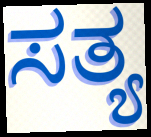
ಸತ್ಯ